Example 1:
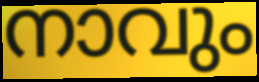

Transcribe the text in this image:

നാവും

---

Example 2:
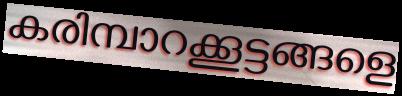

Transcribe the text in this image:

കരിമ്പാറക്കൂട്ടങ്ങളെ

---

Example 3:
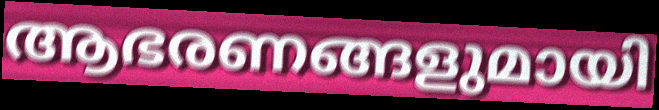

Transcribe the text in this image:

ആഭരണങ്ങളുമായി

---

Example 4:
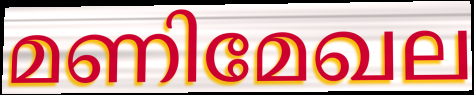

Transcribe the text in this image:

മണിമേഖല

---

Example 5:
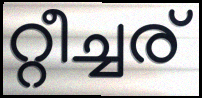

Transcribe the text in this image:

റ്റീച്ചര്